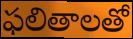
ఫలితాలతో